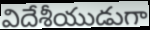
విదేశీయుడుగా